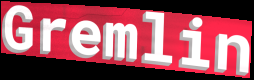
Gremlin